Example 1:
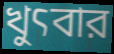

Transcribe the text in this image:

খুৎবার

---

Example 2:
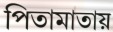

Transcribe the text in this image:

পিতামাতায়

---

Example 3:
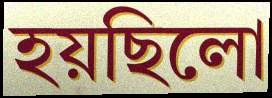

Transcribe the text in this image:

হয়ছিলো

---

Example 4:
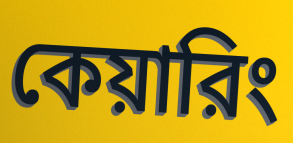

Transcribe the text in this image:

কেয়ারিং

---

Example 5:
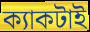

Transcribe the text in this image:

ক্যাকটাই